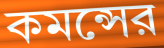
কমন্সের